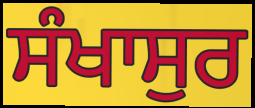
ਸੰਖਾਸੁਰ